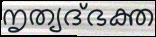
നൃത്യദ്ഭക്ത